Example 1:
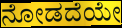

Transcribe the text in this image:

ನೋಡದೆಯೇ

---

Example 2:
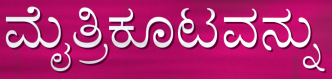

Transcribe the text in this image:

ಮೈತ್ರಿಕೂಟವನ್ನು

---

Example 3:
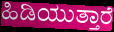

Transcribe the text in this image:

ಹಿಡಿಯುತ್ತಾರೆ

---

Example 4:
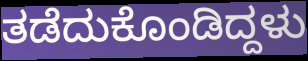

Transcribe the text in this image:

ತಡೆದುಕೊಂಡಿದ್ದಳು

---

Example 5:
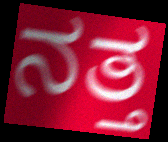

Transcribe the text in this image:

ನತ್ತ